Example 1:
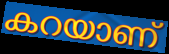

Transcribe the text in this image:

കറയാണ്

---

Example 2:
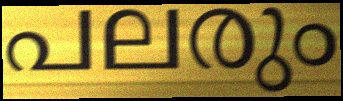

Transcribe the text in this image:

പലരും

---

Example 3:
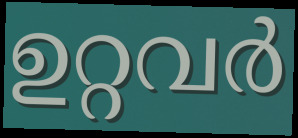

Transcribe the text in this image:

ഉറ്റവർ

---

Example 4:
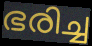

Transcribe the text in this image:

ഭരിച്ച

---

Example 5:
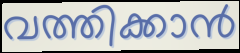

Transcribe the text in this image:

വത്തിക്കാൻ